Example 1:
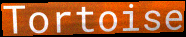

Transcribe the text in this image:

Tortoise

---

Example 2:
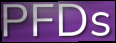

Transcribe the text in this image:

PFDs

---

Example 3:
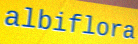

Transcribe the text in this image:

albiflora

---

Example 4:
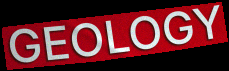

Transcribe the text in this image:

GEOLOGY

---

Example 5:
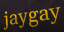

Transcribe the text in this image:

jaygay